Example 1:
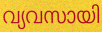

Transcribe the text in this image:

വ്യവസായി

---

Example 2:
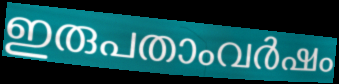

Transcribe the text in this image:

ഇരുപതാംവർഷം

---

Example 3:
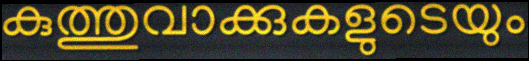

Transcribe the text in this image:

കുത്തുവാക്കുകളുടെയും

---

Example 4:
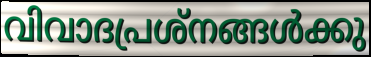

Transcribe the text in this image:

വിവാദപ്രശ്നങ്ങൾക്കു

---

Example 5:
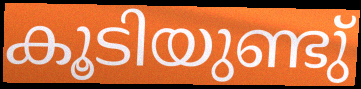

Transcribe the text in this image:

കൂടിയുണ്ടു്